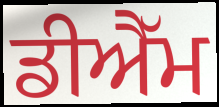
ਡੀਐੱਮ